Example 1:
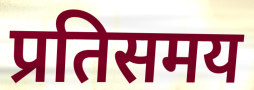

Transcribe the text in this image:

प्रतिसमय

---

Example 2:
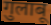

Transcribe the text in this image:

गुलाबू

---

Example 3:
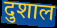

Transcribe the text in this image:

दुशाल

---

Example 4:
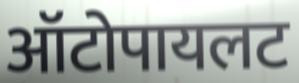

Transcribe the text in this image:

ऑटोपायलट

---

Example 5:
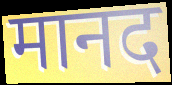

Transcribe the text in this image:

मानद